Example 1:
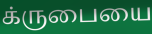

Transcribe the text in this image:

க்ருபையை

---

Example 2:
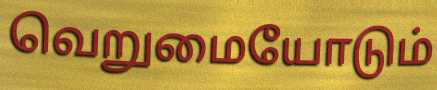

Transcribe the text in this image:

வெறுமையோடும்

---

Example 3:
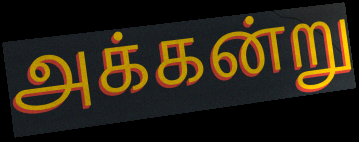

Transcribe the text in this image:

அக்கன்று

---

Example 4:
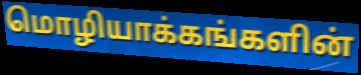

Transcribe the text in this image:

மொழியாக்கங்களின்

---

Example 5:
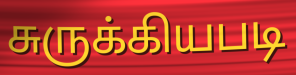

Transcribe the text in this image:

சுருக்கியபடி